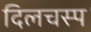
दिलचस्प